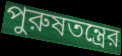
পুরুষতন্ত্রের